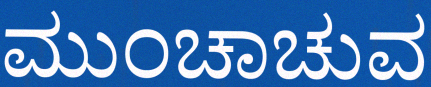
ಮುಂಚಾಚುವ